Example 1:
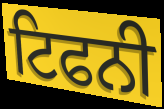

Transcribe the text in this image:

ਟਿਫਨੀ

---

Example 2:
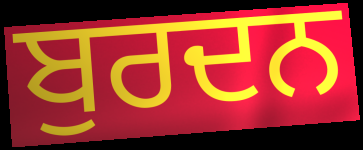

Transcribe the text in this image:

ਬੁਰਦਨ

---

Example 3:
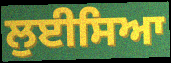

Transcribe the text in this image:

ਲੁਈਸਿਆ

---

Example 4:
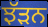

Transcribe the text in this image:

ਝੱੜਨ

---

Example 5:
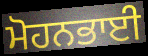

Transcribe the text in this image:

ਮੋਹਨਭਾਈ